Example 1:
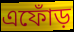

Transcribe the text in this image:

এফোঁড়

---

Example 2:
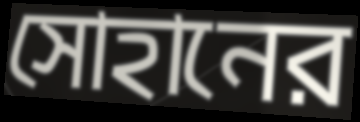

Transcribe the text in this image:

সোহানের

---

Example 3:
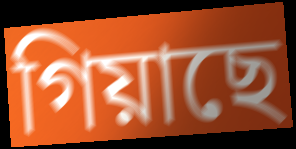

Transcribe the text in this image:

গিয়াছে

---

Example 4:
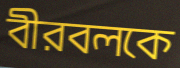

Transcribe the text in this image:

বীরবলকে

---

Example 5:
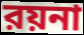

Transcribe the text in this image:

রয়না